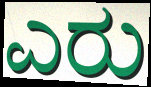
ಎರು